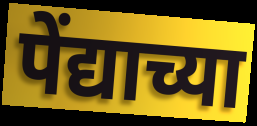
पेंद्याच्या